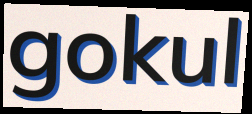
gokul